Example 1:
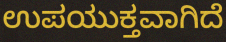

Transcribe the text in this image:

ಉಪಯುಕ್ತವಾಗಿದೆ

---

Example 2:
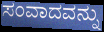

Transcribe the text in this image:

ಸಂವಾದವನ್ನು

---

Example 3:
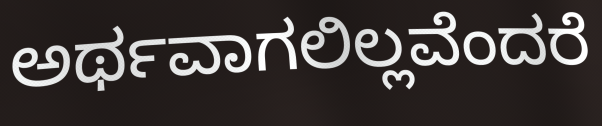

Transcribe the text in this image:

ಅರ್ಥವಾಗಲಿಲ್ಲವೆಂದರೆ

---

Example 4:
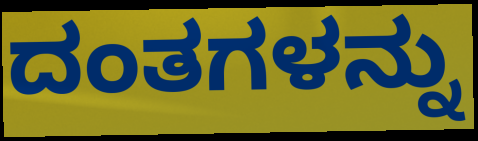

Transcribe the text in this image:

ದಂತಗಳನ್ನು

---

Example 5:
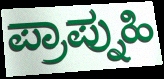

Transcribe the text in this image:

ಪ್ರಾಪ್ನುಹಿ